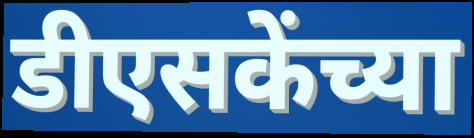
डीएसकेंच्या